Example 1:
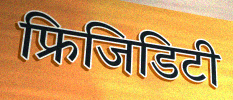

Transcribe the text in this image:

फ्रिजिडिटी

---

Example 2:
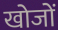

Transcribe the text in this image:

खोजों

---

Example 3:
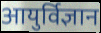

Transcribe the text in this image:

आयुर्विज्ञान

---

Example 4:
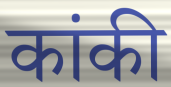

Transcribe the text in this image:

कांकी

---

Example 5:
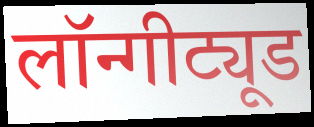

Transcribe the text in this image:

लॉन्गीट्यूड